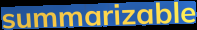
summarizable